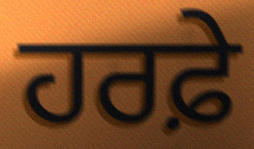
ਹਰਫ਼ੇ